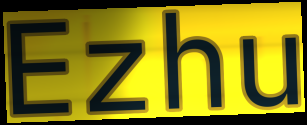
Ezhu